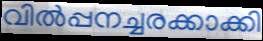
വിൽപ്പനച്ചരക്കാക്കി